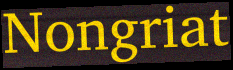
Nongriat